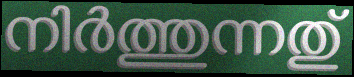
നിർത്തുന്നതു്